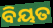
ବିୟତ